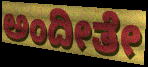
ಅಂದೀತೇ